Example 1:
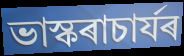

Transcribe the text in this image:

ভাস্কৰাচাৰ্যৰ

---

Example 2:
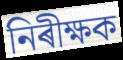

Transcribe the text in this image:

নিৰীক্ষক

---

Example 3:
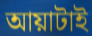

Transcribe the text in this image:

আয়াটাই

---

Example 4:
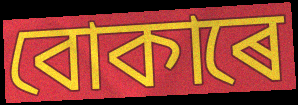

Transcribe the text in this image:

বোকাৰে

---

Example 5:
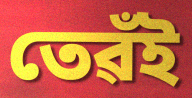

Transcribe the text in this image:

তেৱঁই